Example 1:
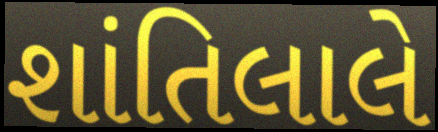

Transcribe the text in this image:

શાંતિલાલે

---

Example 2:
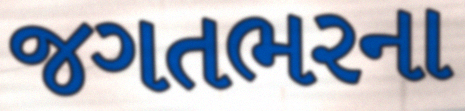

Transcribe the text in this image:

જગતભરના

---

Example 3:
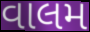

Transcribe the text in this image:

વાલમ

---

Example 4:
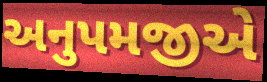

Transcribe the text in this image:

અનુપમજીએ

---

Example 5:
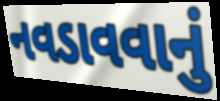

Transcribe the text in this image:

નવડાવવાનું